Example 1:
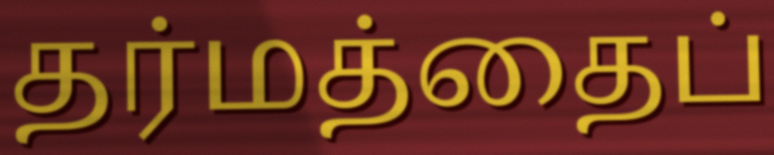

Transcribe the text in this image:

தர்மத்தைப்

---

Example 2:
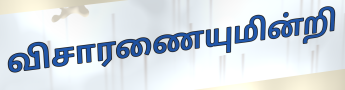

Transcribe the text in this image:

விசாரணையுமின்றி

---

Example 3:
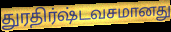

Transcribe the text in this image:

துரதிர்ஷ்டவசமானது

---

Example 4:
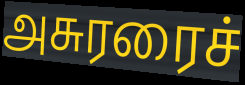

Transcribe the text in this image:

அசுரரைச்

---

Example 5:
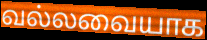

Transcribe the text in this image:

வல்லவையாக